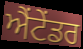
ਐਂਟੇਂਡਰ